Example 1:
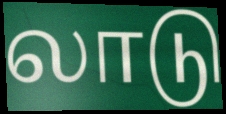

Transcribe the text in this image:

லாடு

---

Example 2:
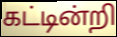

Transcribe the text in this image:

கட்டின்றி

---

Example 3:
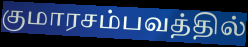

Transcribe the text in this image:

குமாரசம்பவத்தில்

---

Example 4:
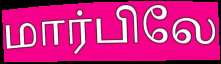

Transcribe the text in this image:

மார்பிலே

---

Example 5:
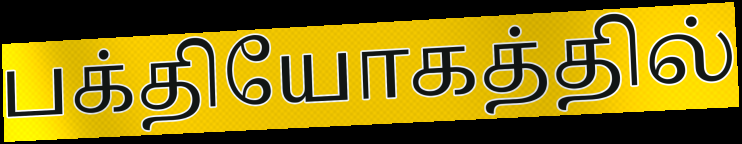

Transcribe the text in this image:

பக்தியோகத்தில்